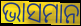
ଭାସମାନ